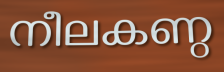
നീലകണ്ഠ